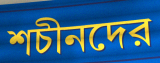
শচীনদের